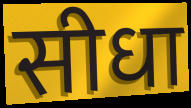
सीधा